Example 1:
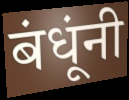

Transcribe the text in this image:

बंधूंनी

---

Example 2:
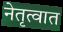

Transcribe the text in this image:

नेतृत्वात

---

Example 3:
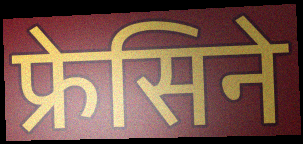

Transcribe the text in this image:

फ्रेसिने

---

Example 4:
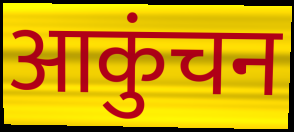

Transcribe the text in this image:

आकुंचन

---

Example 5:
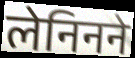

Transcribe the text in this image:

लेनिनने